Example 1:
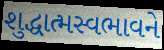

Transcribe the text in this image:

શુદ્ધાત્મસ્વભાવને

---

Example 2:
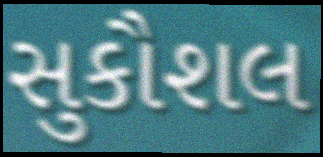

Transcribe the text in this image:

સુકૌશલ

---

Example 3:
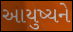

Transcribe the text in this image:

આયુષ્યને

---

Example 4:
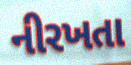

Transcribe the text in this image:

નીરખતા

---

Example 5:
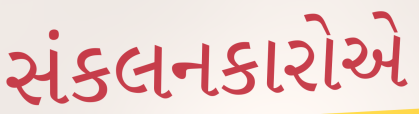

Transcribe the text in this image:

સંકલનકારોએ